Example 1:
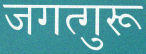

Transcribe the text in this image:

जगत्गुरू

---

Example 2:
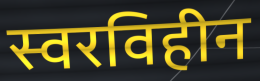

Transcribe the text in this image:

स्वरविहीन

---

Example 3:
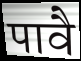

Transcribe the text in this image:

पावै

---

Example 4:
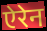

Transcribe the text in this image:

ऐरेन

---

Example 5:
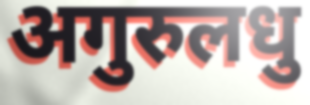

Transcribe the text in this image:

अगुरुलधु